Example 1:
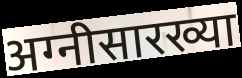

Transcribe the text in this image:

अग्नीसारख्या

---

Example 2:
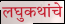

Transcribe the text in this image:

लघुकथांचे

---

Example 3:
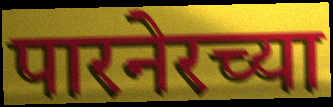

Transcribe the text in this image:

पारनेरच्या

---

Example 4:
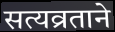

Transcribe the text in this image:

सत्यव्रताने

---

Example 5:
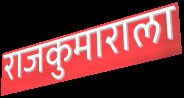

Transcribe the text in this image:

राजकुमाराला